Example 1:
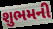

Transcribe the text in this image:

શુભમની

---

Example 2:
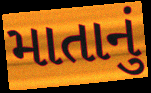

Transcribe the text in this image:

માતાનું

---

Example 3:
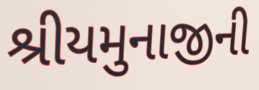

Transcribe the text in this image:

શ્રીયમુનાજીની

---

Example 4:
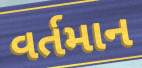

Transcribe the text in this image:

વર્તમાન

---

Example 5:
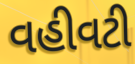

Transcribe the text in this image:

વહીવટી